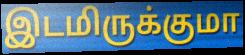
இடமிருக்குமா